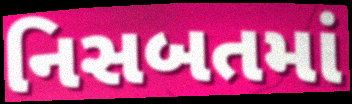
નિસબતમાં